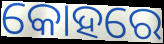
କୋହରେ